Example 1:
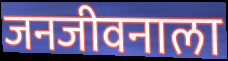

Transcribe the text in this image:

जनजीवनाला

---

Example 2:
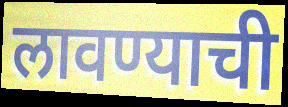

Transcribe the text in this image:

लावण्याची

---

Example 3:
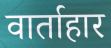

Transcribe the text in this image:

वार्ताहार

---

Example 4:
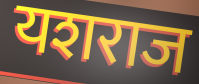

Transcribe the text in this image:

यशराज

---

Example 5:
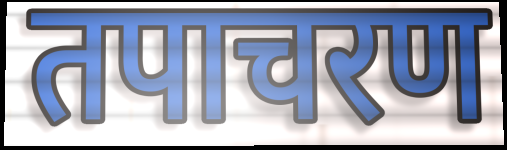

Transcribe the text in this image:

तपाचरण